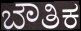
ಬೌತಿಕ